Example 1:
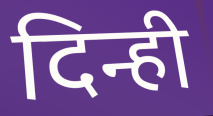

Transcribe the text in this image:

दिन्ही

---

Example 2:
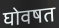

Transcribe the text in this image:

घोवषत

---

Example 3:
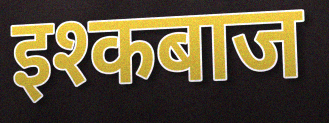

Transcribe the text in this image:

इश्कबाज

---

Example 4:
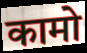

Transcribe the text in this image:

कामो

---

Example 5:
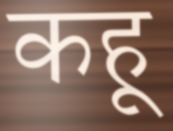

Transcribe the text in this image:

कहू